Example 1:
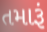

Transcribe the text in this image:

તમારૂં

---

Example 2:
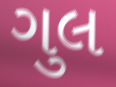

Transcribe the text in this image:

ગુલ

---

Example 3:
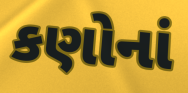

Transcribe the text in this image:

કણોનાં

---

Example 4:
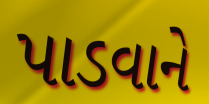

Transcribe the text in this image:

પાડવાને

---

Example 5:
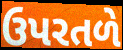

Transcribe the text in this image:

ઉપરતળે